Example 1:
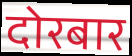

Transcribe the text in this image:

दोरबार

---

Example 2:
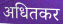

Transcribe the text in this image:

अधितकर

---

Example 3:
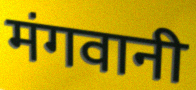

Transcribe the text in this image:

मंगवानी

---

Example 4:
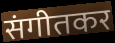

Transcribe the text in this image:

संगीतकर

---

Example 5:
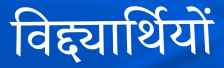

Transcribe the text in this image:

विद्द्यार्थियों